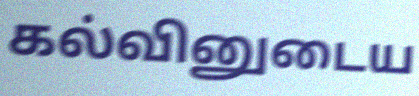
கல்வினுடைய